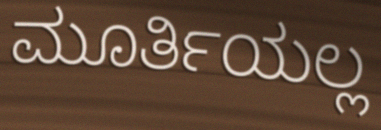
ಮೂರ್ತಿಯಲ್ಲ